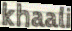
khaali